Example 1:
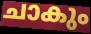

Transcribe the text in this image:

ചാകും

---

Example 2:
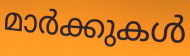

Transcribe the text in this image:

മാർക്കുകൾ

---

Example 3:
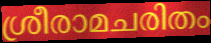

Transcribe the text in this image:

ശ്രീരാമചരിതം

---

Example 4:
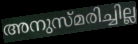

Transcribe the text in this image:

അനുസ്മരിച്ചില്ല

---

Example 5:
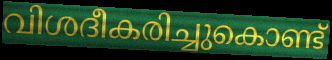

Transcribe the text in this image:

വിശദീകരിച്ചുകൊണ്ട്